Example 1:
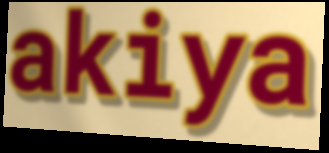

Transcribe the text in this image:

akiya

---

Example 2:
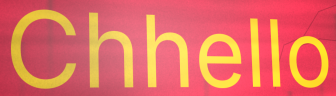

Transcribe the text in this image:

Chhello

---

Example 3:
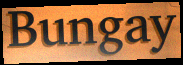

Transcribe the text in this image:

Bungay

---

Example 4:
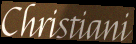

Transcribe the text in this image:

Christiani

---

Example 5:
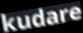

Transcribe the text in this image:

kudare